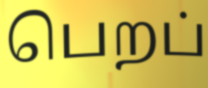
பெறப்